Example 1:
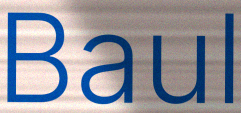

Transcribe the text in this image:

Baul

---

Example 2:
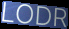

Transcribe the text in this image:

LODR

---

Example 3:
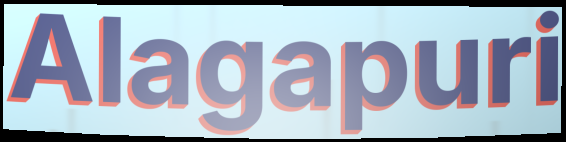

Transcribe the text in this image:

Alagapuri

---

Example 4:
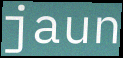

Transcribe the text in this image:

jaun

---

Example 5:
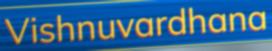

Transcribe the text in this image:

Vishnuvardhana